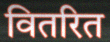
वितरित